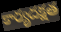
కార్యదక్షత